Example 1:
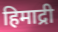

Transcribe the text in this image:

हिमाद्री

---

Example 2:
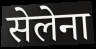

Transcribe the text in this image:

सेलेना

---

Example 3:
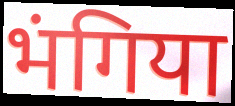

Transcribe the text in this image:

भंगिया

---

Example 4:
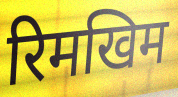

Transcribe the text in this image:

रिमखिम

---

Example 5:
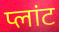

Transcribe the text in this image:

प्लांट